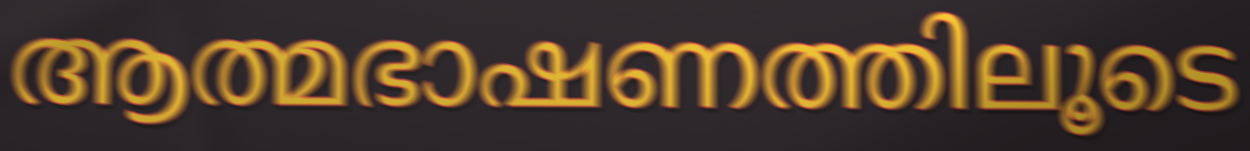
ആത്മഭാഷണത്തിലൂടെ